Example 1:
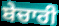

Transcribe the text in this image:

ਬੇਚਾਰੀ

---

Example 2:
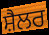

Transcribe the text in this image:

ਸ਼ੈਲਰ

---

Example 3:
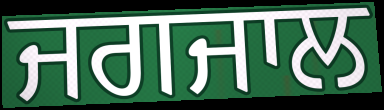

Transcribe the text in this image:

ਜਗਜਾਲ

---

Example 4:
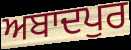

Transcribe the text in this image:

ਅਬਾਦਪੁਰ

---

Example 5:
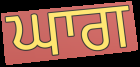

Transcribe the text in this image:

ਘਾਗ